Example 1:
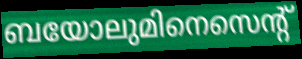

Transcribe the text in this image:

ബയോലുമിനെസെന്റ്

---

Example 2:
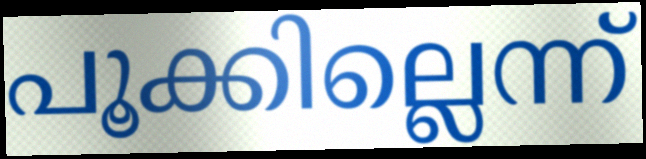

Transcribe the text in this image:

പൂക്കില്ലെന്ന്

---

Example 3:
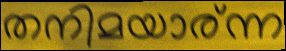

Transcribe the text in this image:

തനിമയാര്ന്ന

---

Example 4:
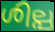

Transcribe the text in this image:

ശില്പ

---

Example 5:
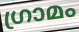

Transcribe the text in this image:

ഗ്രാമം